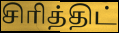
சிரித்திட்